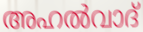
അഹൽവാദ്